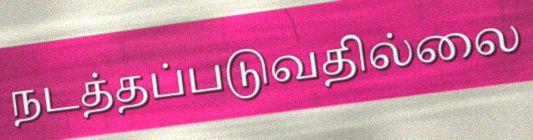
நடத்தப்படுவதில்லை